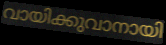
വായിക്കുവാനായി